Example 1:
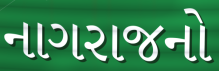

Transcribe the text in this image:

નાગરાજનો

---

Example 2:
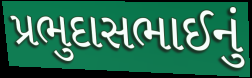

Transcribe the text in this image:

પ્રભુદાસભાઈનું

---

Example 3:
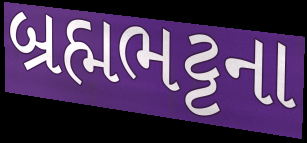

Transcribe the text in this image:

બ્રહ્મભટ્ટના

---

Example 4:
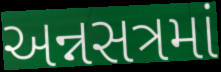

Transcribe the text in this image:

અન્નસત્રમાં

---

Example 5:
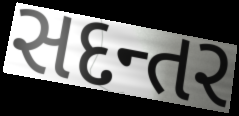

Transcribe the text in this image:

સદન્તર